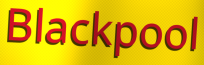
Blackpool